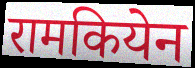
रामकियेन